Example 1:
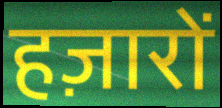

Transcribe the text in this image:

हज़ारों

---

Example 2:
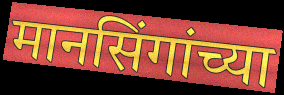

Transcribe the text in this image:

मानसिंगांच्या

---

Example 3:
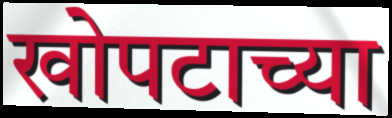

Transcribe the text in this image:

खोपटाच्या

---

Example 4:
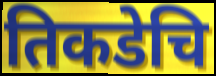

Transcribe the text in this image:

तिकडेचि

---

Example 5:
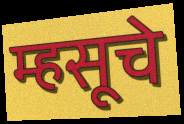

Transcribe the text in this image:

म्हसूचे